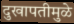
दुखापतीमुळे